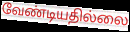
வேண்டியதில்லை